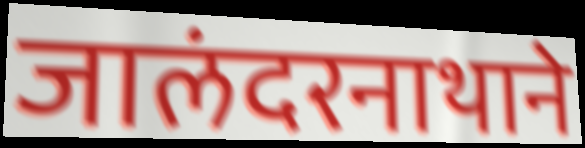
जालंदरनाथाने